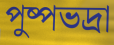
পুষ্পভদ্রা